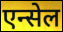
एन्सेल